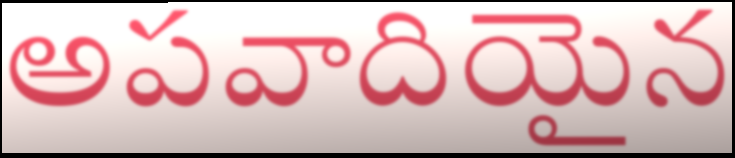
అపవాదియైన